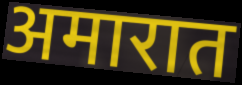
अमारात